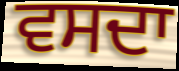
ਵਸਦਾ